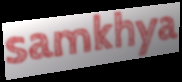
samkhya